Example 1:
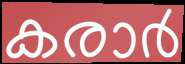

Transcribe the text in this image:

കരാർ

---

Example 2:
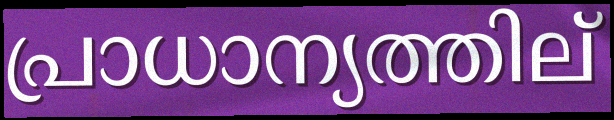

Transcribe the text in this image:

പ്രാധാന്യത്തില്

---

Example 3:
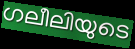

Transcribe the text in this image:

ഗലീലിയുടെ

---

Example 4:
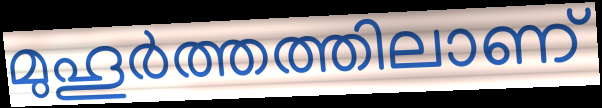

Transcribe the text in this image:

മുഹൂർത്തത്തിലാണ്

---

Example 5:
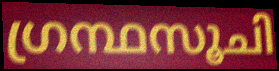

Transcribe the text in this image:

ഗ്രന്ഥസൂചി